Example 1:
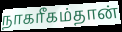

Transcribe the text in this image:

நாகரீகம்தான்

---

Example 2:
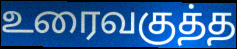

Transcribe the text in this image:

உரைவகுத்த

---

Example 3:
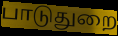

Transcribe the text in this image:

பாடுதுறை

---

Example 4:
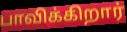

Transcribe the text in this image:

பாவிக்கிறார்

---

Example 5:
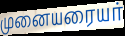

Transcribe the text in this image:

முனையரையர்